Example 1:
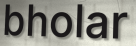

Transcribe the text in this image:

bholar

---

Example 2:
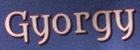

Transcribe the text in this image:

Gyorgy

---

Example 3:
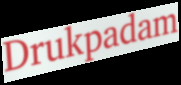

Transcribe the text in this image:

Drukpadam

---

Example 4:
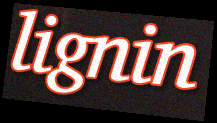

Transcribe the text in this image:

lignin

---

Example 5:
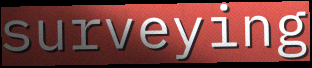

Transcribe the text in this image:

surveying